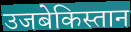
उजबेकिस्तान